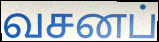
வசனப்